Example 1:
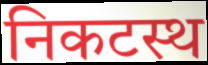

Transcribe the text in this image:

निकटस्‍थ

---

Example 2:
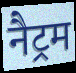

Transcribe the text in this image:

नैट्रम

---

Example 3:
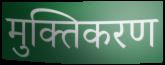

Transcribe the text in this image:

मुक्तिकरण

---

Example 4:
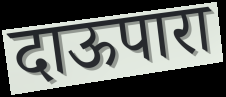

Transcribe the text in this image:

दाऊपारा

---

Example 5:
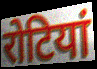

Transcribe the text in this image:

रोटियां